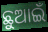
ଛୁଆଇଁ